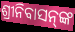
ଶ୍ରୀନିବାସନ୍‌ଙ୍କ